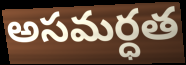
అసమర్ధత